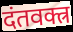
दंतवक्त्र